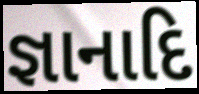
જ્ઞાનાદિ